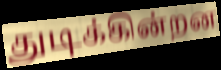
துடிக்கின்றன